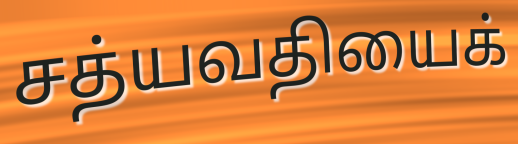
சத்யவதியைக்